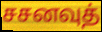
சசனவுத்